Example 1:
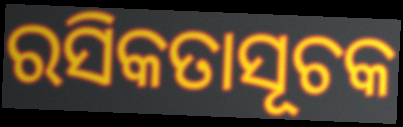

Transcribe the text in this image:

ରସିକତାସୂଚକ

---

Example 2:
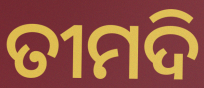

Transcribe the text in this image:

ତୀମଦି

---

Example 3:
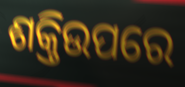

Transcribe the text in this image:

ଶକ୍ତିଉପରେ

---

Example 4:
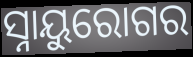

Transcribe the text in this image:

ସ୍ନାୟୁରୋଗର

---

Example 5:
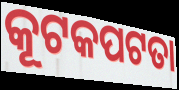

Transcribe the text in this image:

କୂଟକପଟତା